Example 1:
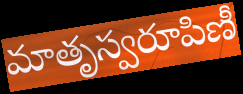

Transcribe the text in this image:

మాతృస్వరూపిణీ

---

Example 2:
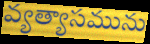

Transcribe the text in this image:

వ్యత్యాసమును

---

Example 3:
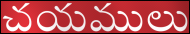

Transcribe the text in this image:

చయములు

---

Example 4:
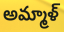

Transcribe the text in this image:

అమ్మాళ్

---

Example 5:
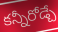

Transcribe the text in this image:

కన్నీరోడ్చే